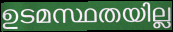
ഉടമസ്ഥതയില്ല